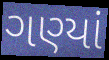
ગણ્યાં